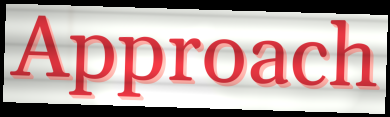
Approach